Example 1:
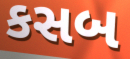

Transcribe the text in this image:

કસબ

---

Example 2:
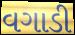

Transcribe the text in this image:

વગાડી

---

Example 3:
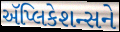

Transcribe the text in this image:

ઍપ્લિકેશન્સને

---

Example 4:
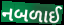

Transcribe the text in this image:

નબળાઈ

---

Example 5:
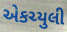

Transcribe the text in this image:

એકચ્યુલી